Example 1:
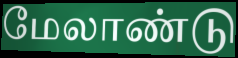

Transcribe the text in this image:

மேலாண்டு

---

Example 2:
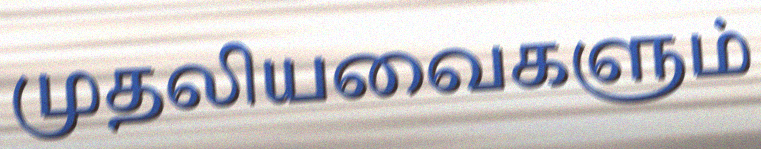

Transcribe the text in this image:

முதலியவைகளும்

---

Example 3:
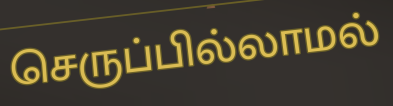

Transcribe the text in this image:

செருப்பில்லாமல்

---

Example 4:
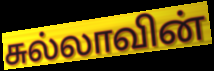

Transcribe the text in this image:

சுல்லாவின்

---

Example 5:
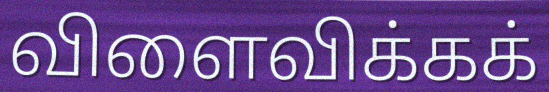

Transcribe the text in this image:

விளைவிக்கக்